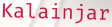
Kalainjar